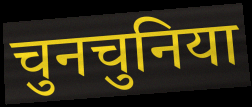
चुनचुनिया